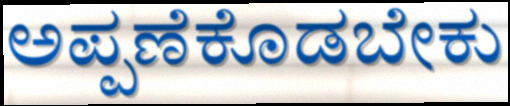
ಅಪ್ಪಣೆಕೊಡಬೇಕು